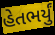
હેતભર્યું